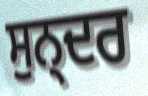
ਸੁਨ੍ਦਰ